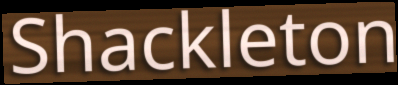
Shackleton